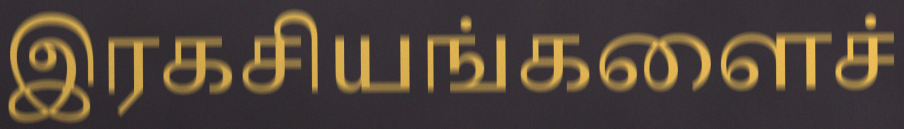
இரகசியங்களைச்